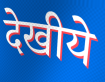
देखीये